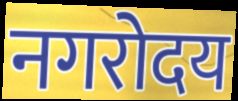
नगरोदय